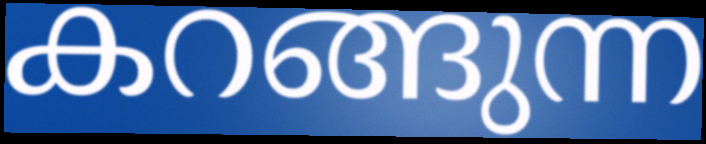
കറങ്ങുന്ന